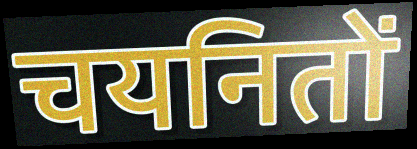
चयनितों